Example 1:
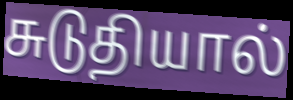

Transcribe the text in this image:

சுடுதியால்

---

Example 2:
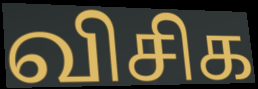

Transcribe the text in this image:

விசிக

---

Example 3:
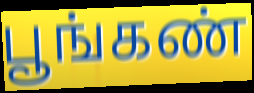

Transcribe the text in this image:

பூங்கண்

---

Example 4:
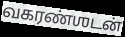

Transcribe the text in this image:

வகரண்ஶடன்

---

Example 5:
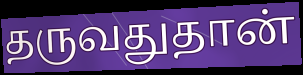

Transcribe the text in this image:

தருவதுதான்